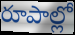
రూపాల్లో